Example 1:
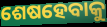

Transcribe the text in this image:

ଶେଷହେବାକୁ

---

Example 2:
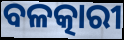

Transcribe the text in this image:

ବଳତ୍କାରୀ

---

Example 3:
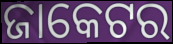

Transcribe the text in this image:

ଜାକେଟର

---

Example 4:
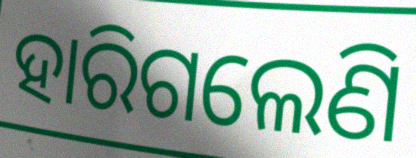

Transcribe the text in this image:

ହାରିଗଲେଣି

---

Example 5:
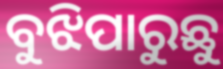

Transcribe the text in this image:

ବୁଝିପାରୁଛୁ